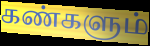
கண்களும்